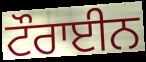
ਟੌਰਾਈਨ